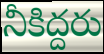
నీకిద్దరు